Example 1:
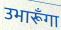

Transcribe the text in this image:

उभारूँगा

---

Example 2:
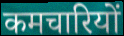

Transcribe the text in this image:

कमचारियों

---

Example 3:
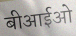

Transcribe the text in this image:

बीआईओ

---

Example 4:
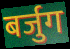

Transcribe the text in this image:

बर्जुग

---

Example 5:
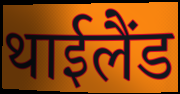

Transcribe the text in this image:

थाईलैंड